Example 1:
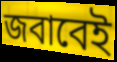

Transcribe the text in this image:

জবাবেই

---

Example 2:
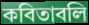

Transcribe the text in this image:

কবিতাবলি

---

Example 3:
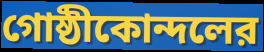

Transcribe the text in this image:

গোষ্ঠীকোন্দলের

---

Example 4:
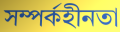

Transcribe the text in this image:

সম্পর্কহীনতা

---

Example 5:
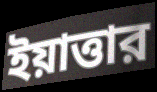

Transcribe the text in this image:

ইয়াত্তার